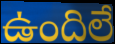
ఉందిలే